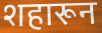
शहारून